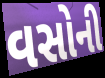
વસોની